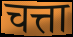
चत्ता